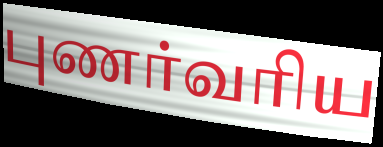
புணர்வரிய